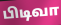
பிடிவா